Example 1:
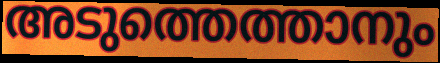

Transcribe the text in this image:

അടുത്തെത്താനും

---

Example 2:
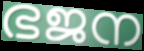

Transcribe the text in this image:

ഭജന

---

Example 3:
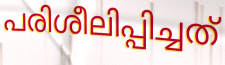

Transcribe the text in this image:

പരിശീലിപ്പിച്ചത്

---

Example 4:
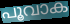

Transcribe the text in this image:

പൂവാക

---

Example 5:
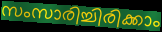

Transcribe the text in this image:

സംസാരിച്ചിരിക്കാം